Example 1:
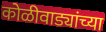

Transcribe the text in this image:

कोळीवाड्यांच्या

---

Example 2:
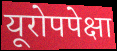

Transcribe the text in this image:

यूरोपपेक्षा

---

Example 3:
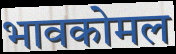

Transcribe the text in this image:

भावकोमल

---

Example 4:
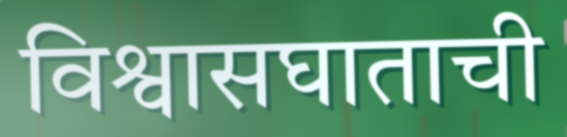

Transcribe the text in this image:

विश्वासघाताची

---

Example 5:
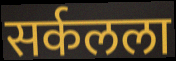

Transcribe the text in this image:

सर्कलला